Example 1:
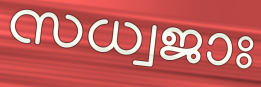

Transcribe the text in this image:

സധ്വജാഃ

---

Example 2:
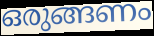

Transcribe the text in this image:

ഒരുങ്ങണം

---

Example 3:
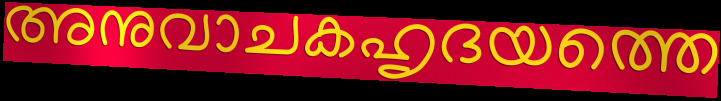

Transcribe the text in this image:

അനുവാചകഹൃദയത്തെ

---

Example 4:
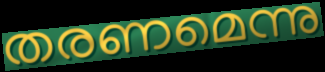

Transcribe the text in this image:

തരണമെന്നു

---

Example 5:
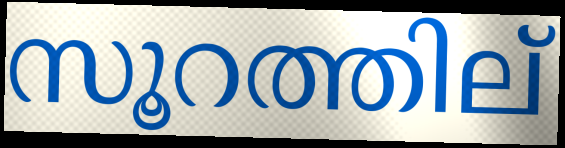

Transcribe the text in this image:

സൂറത്തില്